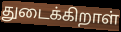
துடைக்கிறாள்